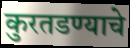
कुरतडण्याचे